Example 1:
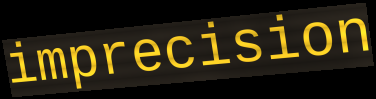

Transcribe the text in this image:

imprecision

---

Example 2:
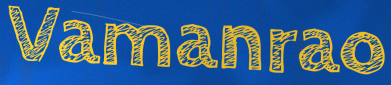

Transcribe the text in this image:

Vamanrao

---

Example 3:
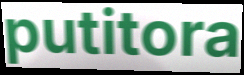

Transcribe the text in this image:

putitora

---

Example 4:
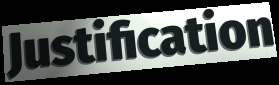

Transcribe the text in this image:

Justification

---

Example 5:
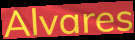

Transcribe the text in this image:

Alvares